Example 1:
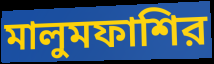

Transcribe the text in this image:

মালুমফাশির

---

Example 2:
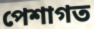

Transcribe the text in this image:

পেশাগত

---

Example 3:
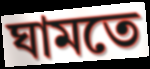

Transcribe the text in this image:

ঘামতে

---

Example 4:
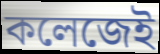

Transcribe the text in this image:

কলেজেই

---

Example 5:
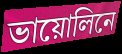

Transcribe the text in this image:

ভায়োলিনে